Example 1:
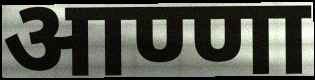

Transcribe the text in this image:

आण्णा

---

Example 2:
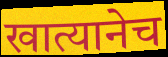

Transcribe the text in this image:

खात्यानेच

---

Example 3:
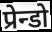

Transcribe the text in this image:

प्रेन्डो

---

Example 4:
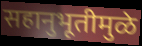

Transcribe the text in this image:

सहानुभूतीमुळे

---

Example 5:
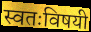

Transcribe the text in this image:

स्वतःविषयी